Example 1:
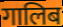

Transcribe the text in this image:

गालिब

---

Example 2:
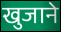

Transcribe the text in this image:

खुजाने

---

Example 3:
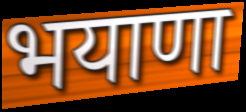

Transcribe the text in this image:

भयाणा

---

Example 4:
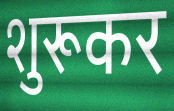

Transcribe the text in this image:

शुरूकर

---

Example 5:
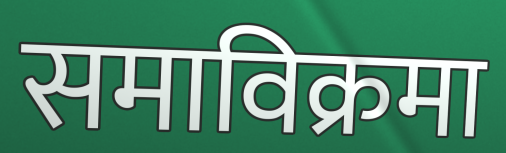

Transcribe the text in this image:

समाविक्रमा